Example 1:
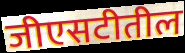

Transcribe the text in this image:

जीएसटीतील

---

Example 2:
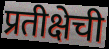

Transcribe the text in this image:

प्रतीक्षेची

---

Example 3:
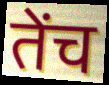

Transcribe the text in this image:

तेंच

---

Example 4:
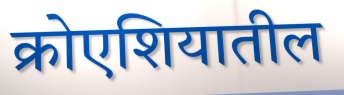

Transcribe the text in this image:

क्रोएशियातील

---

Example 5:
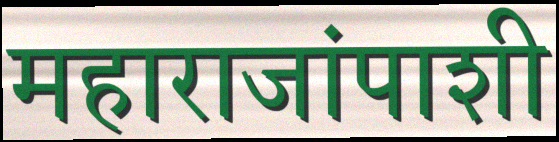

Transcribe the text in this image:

महाराजांपाशी